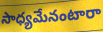
సాధ్యమేనంటారా